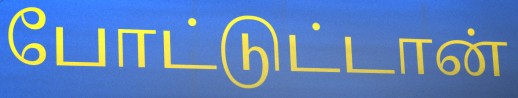
போட்டுட்டான்